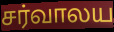
சர்வாலய